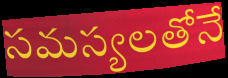
సమస్యలతోనే